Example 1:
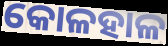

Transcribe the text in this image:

କୋଳହାଳ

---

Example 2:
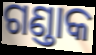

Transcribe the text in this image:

ଗଣ୍ଡାକ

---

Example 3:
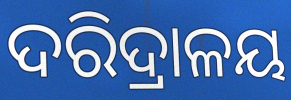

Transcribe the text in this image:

ଦରିଦ୍ରାଳୟ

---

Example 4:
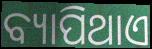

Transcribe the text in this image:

ବ୍ୟାପିଥାଏ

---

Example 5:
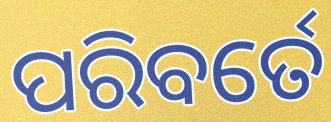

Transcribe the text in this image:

ପରିବର୍ତେ